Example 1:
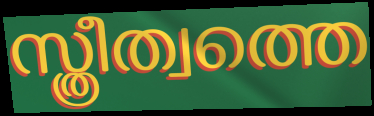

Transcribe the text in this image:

സ്ത്രീത്വത്തെ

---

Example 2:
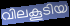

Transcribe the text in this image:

വിലകൂടിയ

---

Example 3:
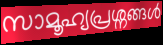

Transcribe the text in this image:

സാമൂഹ്യപ്രശ്നങ്ങൾ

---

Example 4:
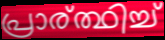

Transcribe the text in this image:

പ്രാര്ത്ഥിച്ച്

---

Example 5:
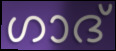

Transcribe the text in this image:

ഗാദ്